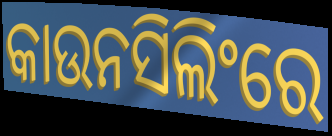
କାଉନସିଲିଂରେ